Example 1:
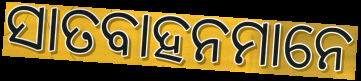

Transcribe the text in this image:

ସାତବାହନମାନେ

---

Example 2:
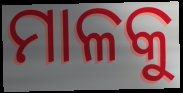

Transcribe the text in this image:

ମାଳକୁ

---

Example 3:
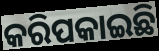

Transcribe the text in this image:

କରିପକାଇଛି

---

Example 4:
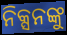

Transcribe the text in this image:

ନିକ୍ସନଙ୍କୁ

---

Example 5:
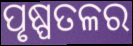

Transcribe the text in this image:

ପୃଷ୍ପତଳର